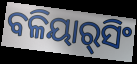
ବଳିୟାର୍‌ସିଂ